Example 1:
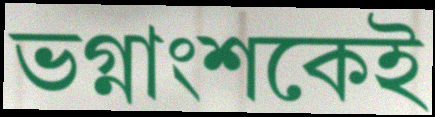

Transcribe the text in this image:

ভগ্নাংশকেই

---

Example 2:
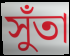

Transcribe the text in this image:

সুঁতা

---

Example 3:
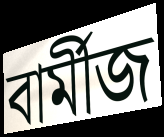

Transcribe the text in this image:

বাৰ্মীজ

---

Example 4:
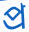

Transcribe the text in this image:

প্ৰ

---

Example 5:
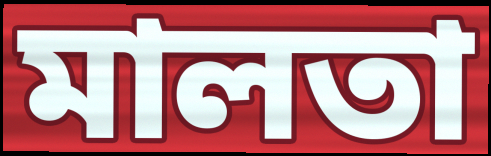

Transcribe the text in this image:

মালতা